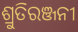
ଶ୍ରୁତିରଞ୍ଜନୀ